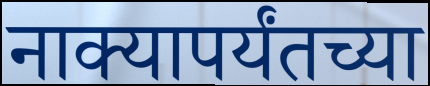
नाक्यापर्यंतच्या